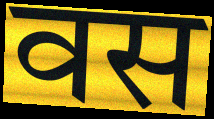
वस